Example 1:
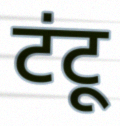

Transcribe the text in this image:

टंटू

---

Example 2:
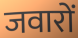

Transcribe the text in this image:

जवारों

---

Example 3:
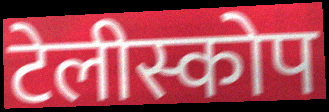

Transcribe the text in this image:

टेलीस्‍कोप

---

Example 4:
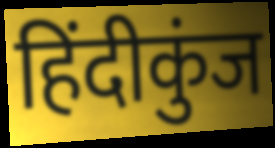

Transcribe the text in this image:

हिंदीकुंज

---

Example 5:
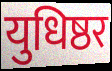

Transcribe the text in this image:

युधिष्ठर